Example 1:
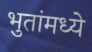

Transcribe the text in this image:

भुतांमध्ये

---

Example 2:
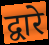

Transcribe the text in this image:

द्वारे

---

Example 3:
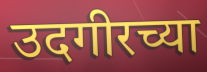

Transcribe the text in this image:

उदगीरच्या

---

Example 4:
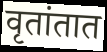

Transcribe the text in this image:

वृतांतात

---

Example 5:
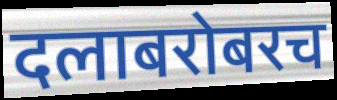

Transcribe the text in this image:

दलाबरोबरच